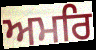
ਅਮਰਿ